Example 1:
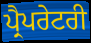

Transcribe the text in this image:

ਪ੍ਰੈਪਰੇਟਰੀ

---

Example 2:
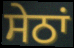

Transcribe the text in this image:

ਸੇਠਾਂ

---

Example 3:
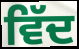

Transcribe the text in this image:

ਵਿੱਦ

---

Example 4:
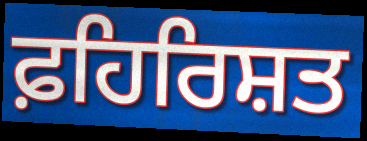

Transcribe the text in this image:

ਫ਼ਹਿਰਿਸ਼ਤ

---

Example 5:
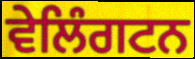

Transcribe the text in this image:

ਵੇਲਿੰਗਟਨ